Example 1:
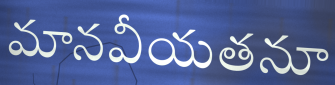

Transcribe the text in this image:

మానవీయతనూ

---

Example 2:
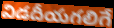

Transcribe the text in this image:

విడదీయగలిగే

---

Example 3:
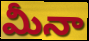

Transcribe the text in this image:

మీనా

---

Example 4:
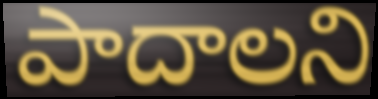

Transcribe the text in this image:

పాదాలని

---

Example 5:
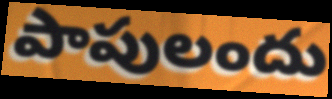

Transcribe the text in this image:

పాపులందు